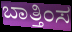
ಬಾತ್ತಿಂಸ